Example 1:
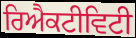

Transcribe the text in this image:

ਰਿਐਕਟੀਵਿਟੀ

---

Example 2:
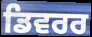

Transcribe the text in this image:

ਡਿਵਰਰ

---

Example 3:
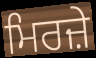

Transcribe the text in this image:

ਮਿਰਜ਼ੇ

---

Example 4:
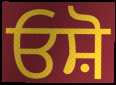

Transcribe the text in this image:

ਓਸ਼ੋ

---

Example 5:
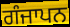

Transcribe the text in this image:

ਗੰਜਾਪਨ